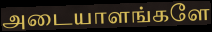
அடையாளங்களே